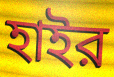
হাইর